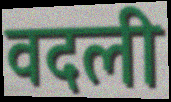
वदली